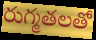
రుగ్మతలతో